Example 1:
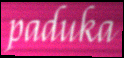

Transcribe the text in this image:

paduka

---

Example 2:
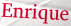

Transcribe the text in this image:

Enrique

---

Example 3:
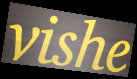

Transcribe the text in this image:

vishe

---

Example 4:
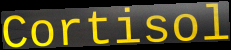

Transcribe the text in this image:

Cortisol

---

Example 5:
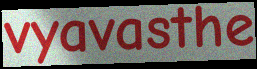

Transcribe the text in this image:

vyavasthe